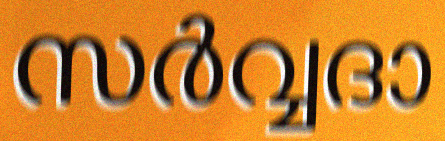
സർവ്വദാ